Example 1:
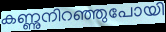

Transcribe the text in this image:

കണ്ണുനിറഞ്ഞുപോയി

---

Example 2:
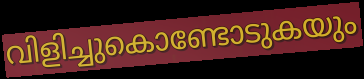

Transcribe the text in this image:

വിളിച്ചുകൊണ്ടോടുകയും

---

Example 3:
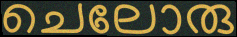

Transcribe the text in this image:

ചെലോരു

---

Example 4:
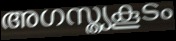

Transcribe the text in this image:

അഗസ്ത്യകൂടം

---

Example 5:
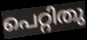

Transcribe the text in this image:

പെറ്റിതു